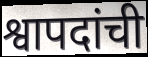
श्वापदांची